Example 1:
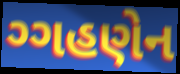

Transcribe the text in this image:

ગ્ગહણેન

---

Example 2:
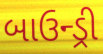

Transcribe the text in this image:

બાઉન્ડ્રી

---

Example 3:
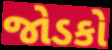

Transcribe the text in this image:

જોડકો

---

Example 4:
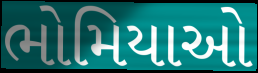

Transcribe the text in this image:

ભોમિયાઓ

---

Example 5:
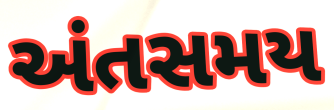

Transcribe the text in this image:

અંતસમય